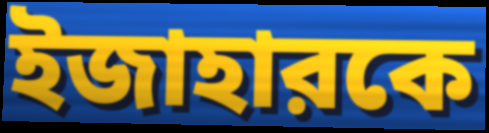
ইজাহারকে